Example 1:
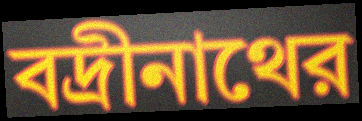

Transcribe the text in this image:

বদ্রীনাথের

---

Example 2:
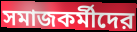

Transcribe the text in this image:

সমাজকর্মীদের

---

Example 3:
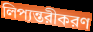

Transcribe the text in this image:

লিপ্যন্তরীকরণ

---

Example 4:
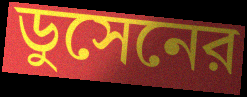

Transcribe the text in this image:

ডুসেনের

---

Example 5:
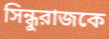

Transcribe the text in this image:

সিন্ধুরাজকে